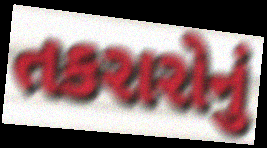
તકરારોનું